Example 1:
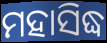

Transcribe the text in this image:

ମହାସିଦ୍ଧ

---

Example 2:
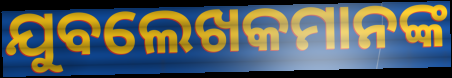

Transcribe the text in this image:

ଯୁବଲେଖକମାନଙ୍କ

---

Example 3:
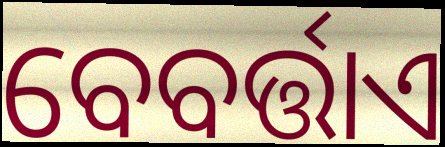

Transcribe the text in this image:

ବେବର୍ତ୍ତାଏ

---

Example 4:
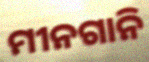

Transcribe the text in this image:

ମୀନଗାନି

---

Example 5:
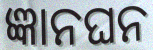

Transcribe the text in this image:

ଜ୍ଞାନଘନ